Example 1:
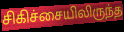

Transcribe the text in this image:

சிகிச்சையிலிருந்த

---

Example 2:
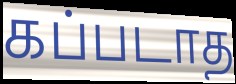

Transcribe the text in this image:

கப்படாத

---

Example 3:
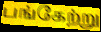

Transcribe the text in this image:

பங்கேற்று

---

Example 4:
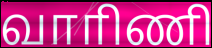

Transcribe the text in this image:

வாரிணி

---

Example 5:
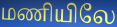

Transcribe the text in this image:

மணியிலே